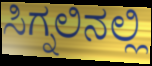
ಸಿಗ್ನಲಿನಲ್ಲಿ